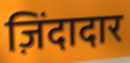
ज़िंदादार